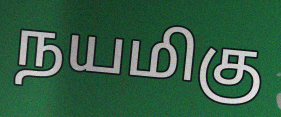
நயமிகு